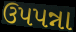
ઉપપન્ના